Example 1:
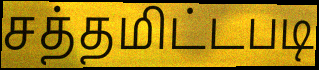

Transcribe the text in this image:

சத்தமிட்டபடி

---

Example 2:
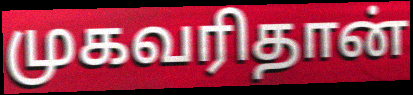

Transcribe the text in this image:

முகவரிதான்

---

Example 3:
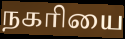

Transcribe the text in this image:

நகரியை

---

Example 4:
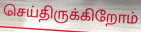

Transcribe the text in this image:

செய்திருக்கிறோம்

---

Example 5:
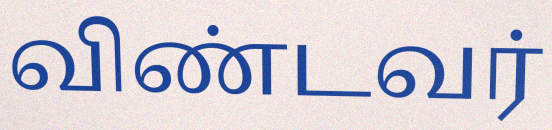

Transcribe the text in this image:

விண்டவர்